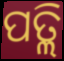
ପତ୍ଲି